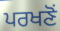
ਪਰਖਣੋਂ